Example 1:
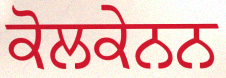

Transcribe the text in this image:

ਕੋਲਕੇਨਨ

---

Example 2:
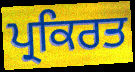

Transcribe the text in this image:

ਪ੍ਰਕਿਰਤ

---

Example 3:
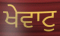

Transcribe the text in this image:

ਖੇਵਾਟੁ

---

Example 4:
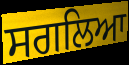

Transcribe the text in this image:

ਸਗਲਿਆ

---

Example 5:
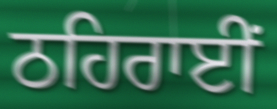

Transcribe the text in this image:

ਠਹਿਰਾਈਂ